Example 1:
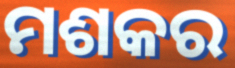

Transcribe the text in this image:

ମଶକର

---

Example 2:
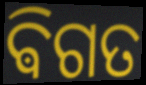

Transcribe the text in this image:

ଵିଗତ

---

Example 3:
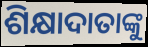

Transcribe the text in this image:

ଶିକ୍ଷାଦାତାଙ୍କୁ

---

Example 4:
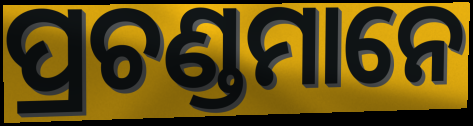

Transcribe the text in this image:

ପ୍ରଚଣ୍ଡମାନେ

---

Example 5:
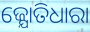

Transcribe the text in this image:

ଜ୍ଯୋତିଧାରା